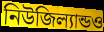
নিউজিল্যান্ডও